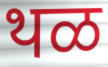
थळ